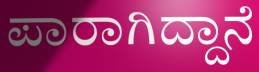
ಪಾರಾಗಿದ್ದಾನೆ